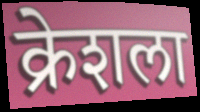
क्रेशला